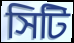
সিটি